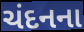
ચંદનના